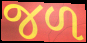
જળ